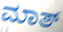
ಮಾತ್